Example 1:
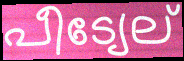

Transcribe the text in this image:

പീട്യേല്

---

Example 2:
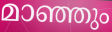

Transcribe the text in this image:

മാഞ്ഞും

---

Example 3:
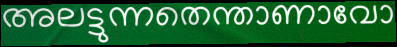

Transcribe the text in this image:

അലട്ടുന്നതെന്താണാവോ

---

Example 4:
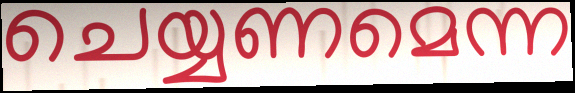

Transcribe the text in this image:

ചെയ്യണമെന്ന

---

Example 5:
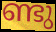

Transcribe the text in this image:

ണ്ടു